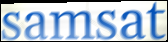
samsat